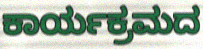
ಕಾರ್ಯಕ್ರಮದ